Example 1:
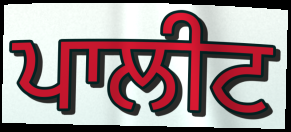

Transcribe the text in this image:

ਪਾਲੀਟ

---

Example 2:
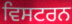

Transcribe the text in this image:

ਵਿਸਟਰਨ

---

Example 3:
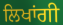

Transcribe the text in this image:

ਲਿਖਾਂਗੀ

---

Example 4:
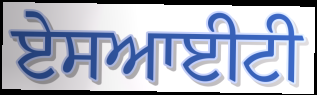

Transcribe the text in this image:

ਏਸਆਈਟੀ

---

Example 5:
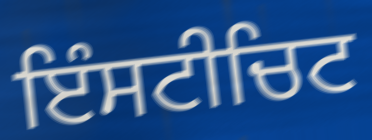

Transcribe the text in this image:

ਇੰਸਟੀਚਿਟ